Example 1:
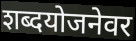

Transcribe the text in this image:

शब्दयोजनेवर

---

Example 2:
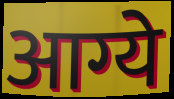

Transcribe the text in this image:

आग्ये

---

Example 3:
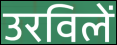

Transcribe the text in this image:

उरविलें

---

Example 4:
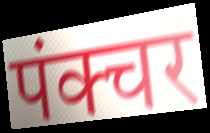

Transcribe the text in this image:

पंक्चर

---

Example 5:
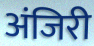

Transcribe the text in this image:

अंजिरी